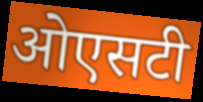
ओएसटी